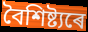
বৈশিষ্ট্যৰে